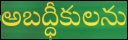
అబద్ధీకులను